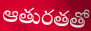
ఆతురతతో